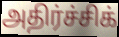
அதிர்ச்சிக்